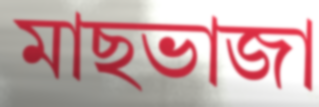
মাছভাজা